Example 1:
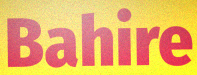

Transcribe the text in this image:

Bahire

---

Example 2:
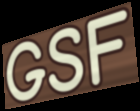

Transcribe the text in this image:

GSF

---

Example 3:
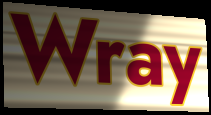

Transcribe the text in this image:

Wray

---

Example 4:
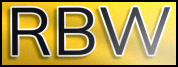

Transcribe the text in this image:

RBW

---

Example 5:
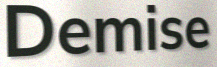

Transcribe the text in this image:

Demise